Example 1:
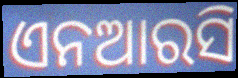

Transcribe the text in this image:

ଏନଆରସି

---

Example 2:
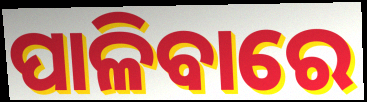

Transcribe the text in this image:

ପାଳିବାରେ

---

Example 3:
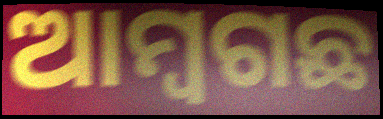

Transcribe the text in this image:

ଆମ୍ୱଗଛ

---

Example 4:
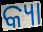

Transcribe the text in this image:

କ୍ୟା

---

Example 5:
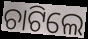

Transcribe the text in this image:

ଚାଟିଲେ